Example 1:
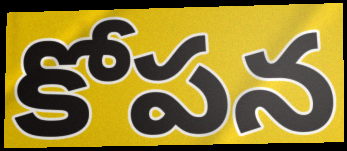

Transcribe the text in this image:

కోపన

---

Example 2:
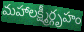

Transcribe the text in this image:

మహాలక్ష్మీర్గృహం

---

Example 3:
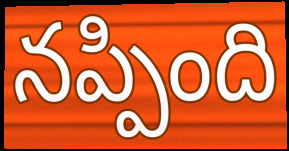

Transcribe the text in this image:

నప్పింది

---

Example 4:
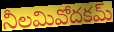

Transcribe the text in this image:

నీలమివోదకమ్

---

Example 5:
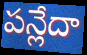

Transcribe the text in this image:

పన్లేదా